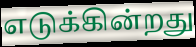
எடுக்கின்றது